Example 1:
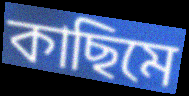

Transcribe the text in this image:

কাছিমে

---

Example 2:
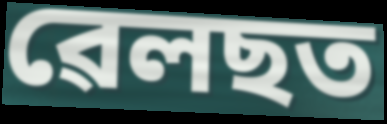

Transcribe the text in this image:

ৱেলছত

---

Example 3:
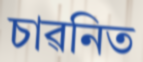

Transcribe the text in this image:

চাৱনিত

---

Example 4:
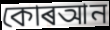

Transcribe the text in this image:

কোৰআন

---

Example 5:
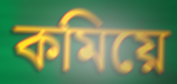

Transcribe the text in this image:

কমিয়ে